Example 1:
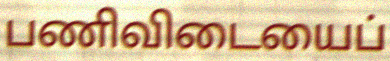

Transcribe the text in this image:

பணிவிடையைப்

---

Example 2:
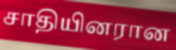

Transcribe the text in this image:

சாதியினரான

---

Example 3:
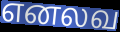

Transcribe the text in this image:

எனலவ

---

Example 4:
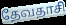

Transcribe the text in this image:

தேவதாசி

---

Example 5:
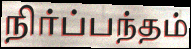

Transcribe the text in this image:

நிர்ப்பந்தம்